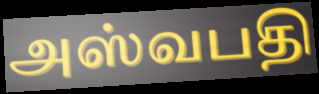
அஸ்வபதி